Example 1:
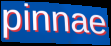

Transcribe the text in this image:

pinnae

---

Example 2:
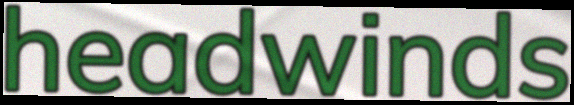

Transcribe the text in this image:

headwinds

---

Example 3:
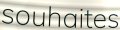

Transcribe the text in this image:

souhaites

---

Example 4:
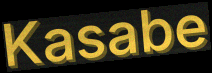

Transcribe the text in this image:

Kasabe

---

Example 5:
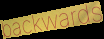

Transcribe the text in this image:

backwards